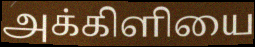
அக்கிளியை